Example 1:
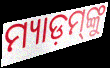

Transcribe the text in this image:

ମ୍ୟାଡ଼ମ୍‌ଙ୍କୁ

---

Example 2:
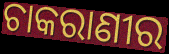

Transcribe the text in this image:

ଚାକରାଣୀର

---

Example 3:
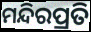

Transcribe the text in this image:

ମନ୍ଦିରପ୍ରତି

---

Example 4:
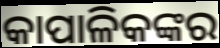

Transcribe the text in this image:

କାପାଳିକଙ୍କର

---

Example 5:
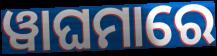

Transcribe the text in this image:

ୱାଘମାରେ